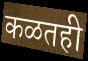
कळतही